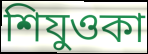
শিযুওকা